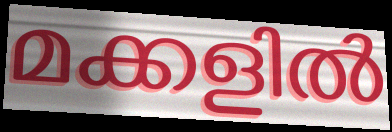
മക്കളിൽ